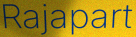
Rajapart